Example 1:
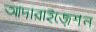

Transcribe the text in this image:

আদারাইজ়েশন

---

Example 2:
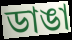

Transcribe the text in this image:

ডাঙা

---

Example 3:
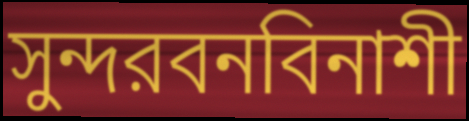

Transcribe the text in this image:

সুন্দরবনবিনাশী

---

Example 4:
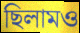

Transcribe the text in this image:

ছিলামও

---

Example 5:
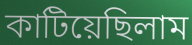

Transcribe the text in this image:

কাটিয়েছিলাম